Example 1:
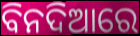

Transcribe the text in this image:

ବିନଦିଆରେ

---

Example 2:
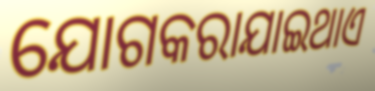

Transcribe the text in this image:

ଯୋଗକରାଯାଇଥାଏ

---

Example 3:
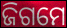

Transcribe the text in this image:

ଜିଗମେ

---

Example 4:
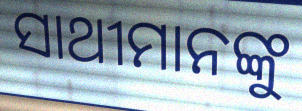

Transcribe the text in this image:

ସାଥୀମାନଙ୍କୁ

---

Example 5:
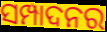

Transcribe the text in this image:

ସମ୍ପାଦନର